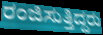
ರಂಜಿಸುತ್ತಿದ್ದರು